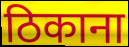
ठिकाना